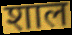
शाल